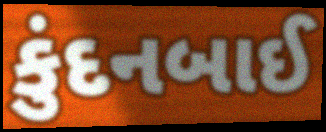
કુંદનબાઈ